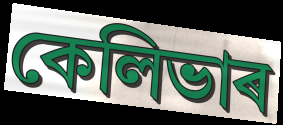
কেলিভাৰ